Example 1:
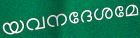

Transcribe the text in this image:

യവനദേശമേ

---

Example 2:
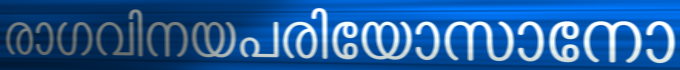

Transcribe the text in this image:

രാഗവിനയപരിയോസാനോ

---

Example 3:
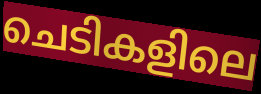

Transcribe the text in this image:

ചെടികളിലെ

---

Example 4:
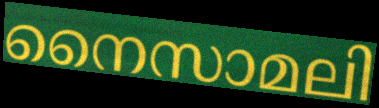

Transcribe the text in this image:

നൈസാമലി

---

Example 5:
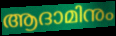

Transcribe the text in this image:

ആദാമിനും